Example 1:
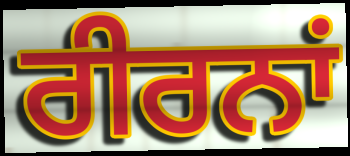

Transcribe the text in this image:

ਰੀਰਨਾਂ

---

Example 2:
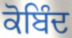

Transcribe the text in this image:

ਕੋਬਿੰਦ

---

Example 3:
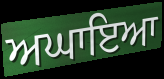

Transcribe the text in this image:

ਅਘਾਇਆ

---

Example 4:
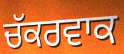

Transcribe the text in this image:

ਚੱਕਰਵਾਕ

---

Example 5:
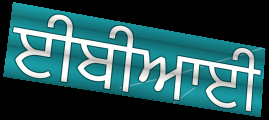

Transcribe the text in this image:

ਈਬੀਆਈ